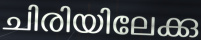
ചിരിയിലേക്കു